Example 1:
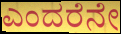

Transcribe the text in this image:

ಎಂದರೆನೇ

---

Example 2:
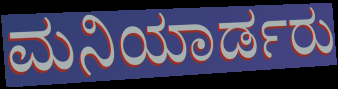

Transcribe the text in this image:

ಮನಿಯಾರ್ಡರು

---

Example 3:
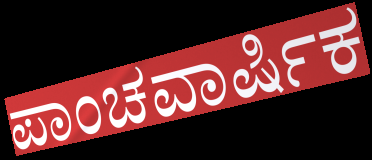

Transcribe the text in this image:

ಪಾಂಚವಾರ್ಷಿಕ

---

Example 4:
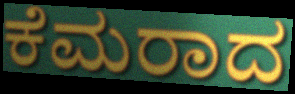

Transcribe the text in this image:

ಕೆಮರಾದ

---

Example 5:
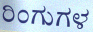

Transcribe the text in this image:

ರಿಂಗುಗಳ